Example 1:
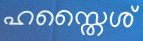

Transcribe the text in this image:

ഹസ്തൈശ്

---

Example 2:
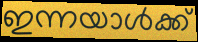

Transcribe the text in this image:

ഇന്നയാൾക്ക്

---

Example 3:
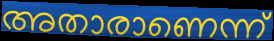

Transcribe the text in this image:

അതാരാണെന്ന്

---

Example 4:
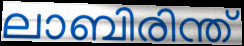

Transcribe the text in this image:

ലാബിരിന്ത്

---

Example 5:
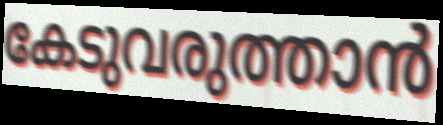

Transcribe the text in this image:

കേടുവരുത്താൻ